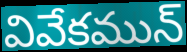
వివేకమున్